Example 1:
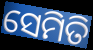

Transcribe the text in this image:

ସେମିତି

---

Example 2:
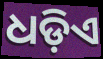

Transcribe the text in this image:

ଧଡ଼ିଏ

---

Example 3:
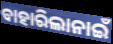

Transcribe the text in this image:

ବାହାରିଲାନାଇଁ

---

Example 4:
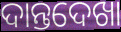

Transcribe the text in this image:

ଦାନ୍ତଦେଖା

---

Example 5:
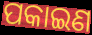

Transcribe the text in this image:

ପକାଇଣ